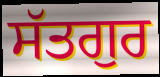
ਸੱਤਗੁਰ